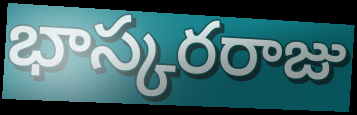
భాస్కరరాజు